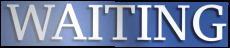
WAITING